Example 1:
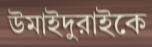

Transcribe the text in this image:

উমাইদুরাইকে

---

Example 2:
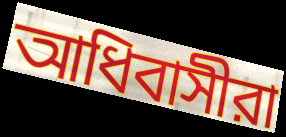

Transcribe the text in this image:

আধিবাসীরা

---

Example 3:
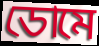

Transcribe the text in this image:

ডোমে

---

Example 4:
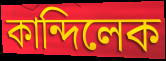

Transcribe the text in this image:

কান্দিলেক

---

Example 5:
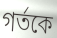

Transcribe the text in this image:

গর্তকে